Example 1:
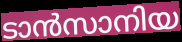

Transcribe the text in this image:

ടാൻസാനിയ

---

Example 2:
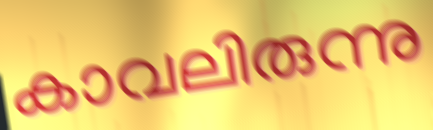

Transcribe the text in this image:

കാവലിരുന്നു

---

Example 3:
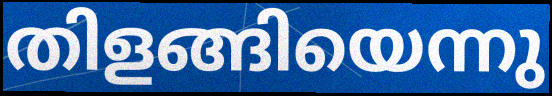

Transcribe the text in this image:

തിളങ്ങിയെന്നു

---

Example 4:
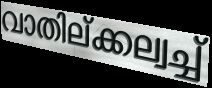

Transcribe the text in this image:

വാതില്ക്കല്വച്ച്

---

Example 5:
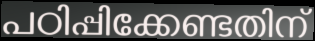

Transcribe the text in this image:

പഠിപ്പിക്കേണ്ടതിന്